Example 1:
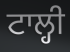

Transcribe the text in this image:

ਟਾਲ੍ਹੀ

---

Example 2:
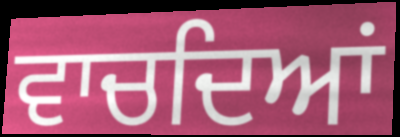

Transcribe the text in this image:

ਵਾਚਦਿਆਂ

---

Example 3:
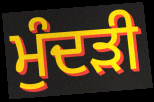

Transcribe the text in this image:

ਮੁੰਦੜੀ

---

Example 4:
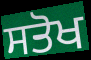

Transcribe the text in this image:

ਸਤੋਖ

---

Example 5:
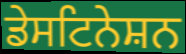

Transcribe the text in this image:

ਡੇਸਟਿਨੇਸ਼ਨ